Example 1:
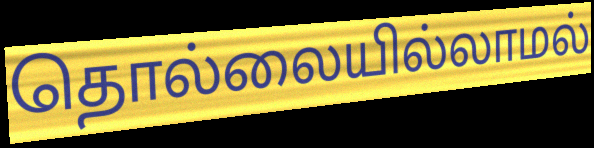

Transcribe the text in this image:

தொல்லையில்லாமல்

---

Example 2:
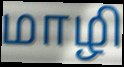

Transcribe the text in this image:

மாழி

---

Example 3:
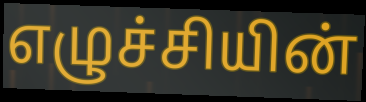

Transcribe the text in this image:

எழுச்சியின்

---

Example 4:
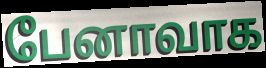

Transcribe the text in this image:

பேனாவாக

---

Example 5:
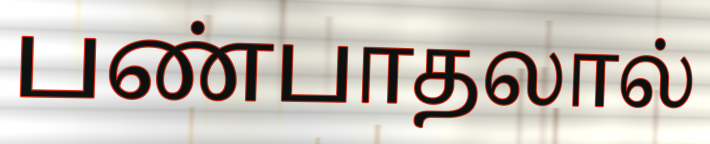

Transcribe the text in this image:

பண்பாதலால்